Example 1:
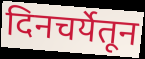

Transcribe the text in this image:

दिनचर्येतून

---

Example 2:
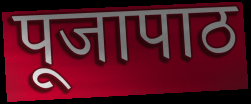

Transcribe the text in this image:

पूजापाठ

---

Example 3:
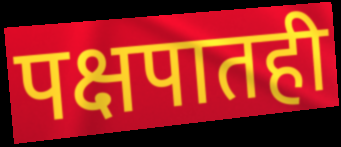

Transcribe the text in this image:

पक्षपातही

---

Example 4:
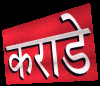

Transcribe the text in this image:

कराडे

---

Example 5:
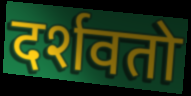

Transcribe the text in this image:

दर्शवतो